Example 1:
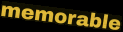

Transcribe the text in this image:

memorable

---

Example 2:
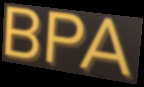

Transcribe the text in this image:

BPA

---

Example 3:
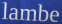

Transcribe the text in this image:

lambe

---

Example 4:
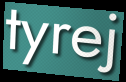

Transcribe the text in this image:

tyrej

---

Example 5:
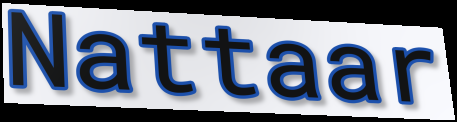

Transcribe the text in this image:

Nattaar